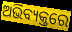
ଅଭିବ୍ୟକ୍ତରେ